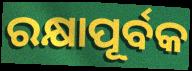
ରକ୍ଷାପୂର୍ବକ